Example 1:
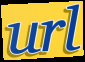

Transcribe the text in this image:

url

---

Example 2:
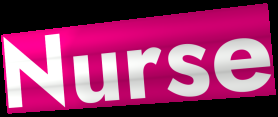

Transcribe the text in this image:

Nurse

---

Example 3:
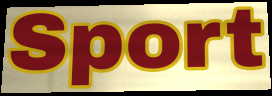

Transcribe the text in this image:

Sport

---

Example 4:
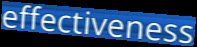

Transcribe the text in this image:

effectiveness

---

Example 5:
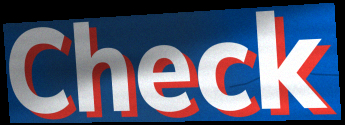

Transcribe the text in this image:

Check